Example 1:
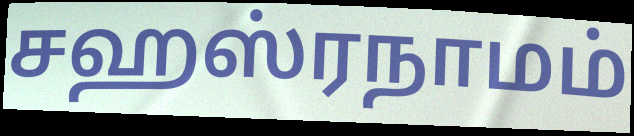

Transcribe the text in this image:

சஹஸ்ரநாமம்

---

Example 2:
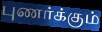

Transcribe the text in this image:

புணர்க்கும்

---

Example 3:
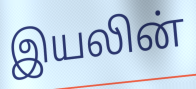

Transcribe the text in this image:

இயலின்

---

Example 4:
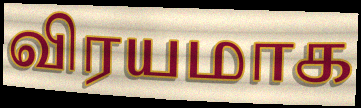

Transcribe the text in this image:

விரயமாக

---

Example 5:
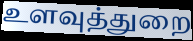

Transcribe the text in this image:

உளவுத்துறை